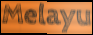
Melayu